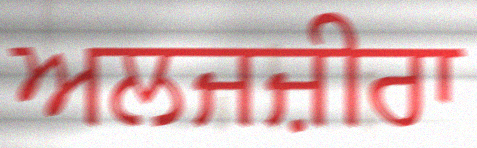
ਅਲਜਜ਼ੀਰਾ